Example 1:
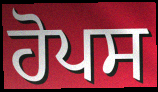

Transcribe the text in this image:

ਹੋਪਸ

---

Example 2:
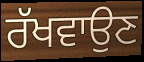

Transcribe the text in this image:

ਰੱਖਵਾਉਣ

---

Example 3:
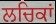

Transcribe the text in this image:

ਲਚਿਕਾਂ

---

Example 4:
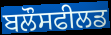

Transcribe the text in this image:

ਬਲੌਸਫੀਲਡ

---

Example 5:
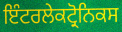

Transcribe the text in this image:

ਇੰਟਰਲੇਕਟ੍ਰੋਨਿਕਸ